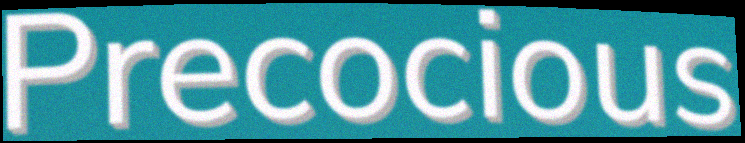
Precocious